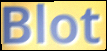
Blot